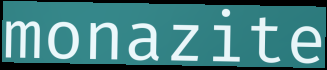
monazite